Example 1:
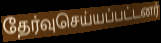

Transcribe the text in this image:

தேர்வுசெய்யப்பட்டனர்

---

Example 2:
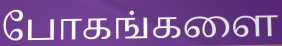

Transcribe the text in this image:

போகங்களை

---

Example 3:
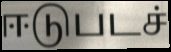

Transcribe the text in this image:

ஈடுபடச்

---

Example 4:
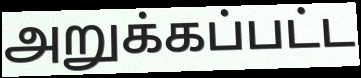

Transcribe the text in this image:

அறுக்கப்பட்ட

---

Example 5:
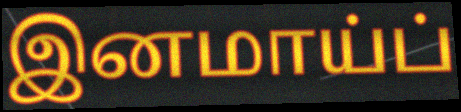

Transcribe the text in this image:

இனமாய்ப்